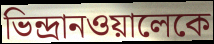
ভিন্দ্রানওয়ালেকে